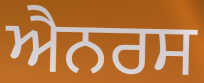
ਐਨਰਸ